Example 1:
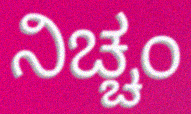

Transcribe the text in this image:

ನಿಚ್ಚಂ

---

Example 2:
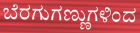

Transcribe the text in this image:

ಬೆರಗುಗಣ್ಣುಗಳಿಂದ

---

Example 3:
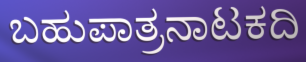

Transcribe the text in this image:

ಬಹುಪಾತ್ರನಾಟಕದಿ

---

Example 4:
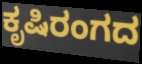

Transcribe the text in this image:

ಕೃಷಿರಂಗದ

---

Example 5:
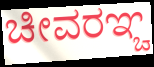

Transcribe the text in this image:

ಚೀವರಞ್ಚ